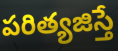
పరిత్యజిస్తే